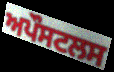
ਅਪੌਸਟਲਸ